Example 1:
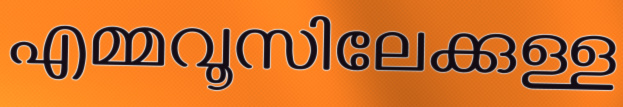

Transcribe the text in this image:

എമ്മവൂസിലേക്കുള്ള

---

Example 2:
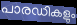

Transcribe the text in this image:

പാരഡികളും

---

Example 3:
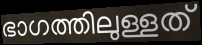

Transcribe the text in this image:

ഭാഗത്തിലുള്ളത്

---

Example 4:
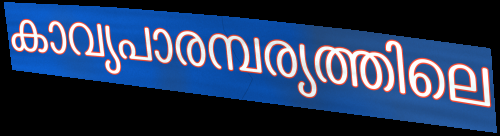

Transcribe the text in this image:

കാവ്യപാരമ്പര്യത്തിലെ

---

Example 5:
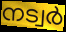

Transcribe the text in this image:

നട്വർ